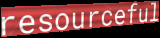
resourceful